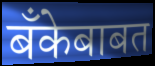
बँकेबाबत